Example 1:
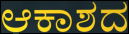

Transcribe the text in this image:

ಆಕಾಶದ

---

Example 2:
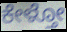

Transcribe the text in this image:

ಕೇಳ್ತೋ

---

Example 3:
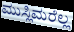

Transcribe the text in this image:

ಮುಸ್ಲಿಮರೆಲ್ಲ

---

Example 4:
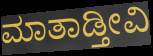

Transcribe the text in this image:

ಮಾತಾಡ್ತೀವಿ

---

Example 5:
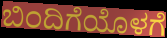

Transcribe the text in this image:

ಬಿಂದಿಗೆಯೊಳಗೆ